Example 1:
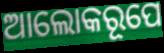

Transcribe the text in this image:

ଆଲୋକରୂପେ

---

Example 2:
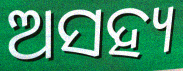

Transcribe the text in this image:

ଅସହ୍ଯ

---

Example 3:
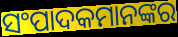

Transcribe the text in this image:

ସଂପାଦକମାନଙ୍କର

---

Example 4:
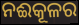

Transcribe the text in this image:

ନଈକୂଳର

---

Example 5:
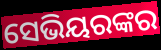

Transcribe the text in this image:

ସେଭିୟରଙ୍କର